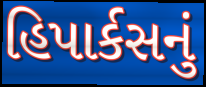
હિપાર્કસનું